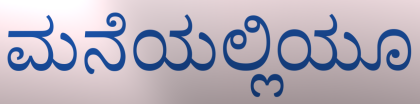
ಮನೆಯಲ್ಲಿಯೂ